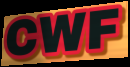
CWF